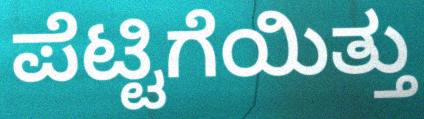
ಪೆಟ್ಟಿಗೆಯಿತ್ತು